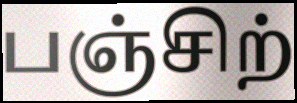
பஞ்சிற்